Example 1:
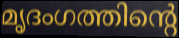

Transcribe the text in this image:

മൃദംഗത്തിന്റെ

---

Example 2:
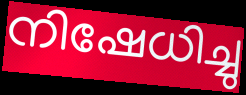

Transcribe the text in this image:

നിഷേധിച്ചു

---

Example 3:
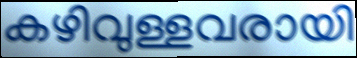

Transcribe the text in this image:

കഴിവുള്ളവരായി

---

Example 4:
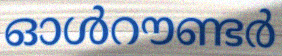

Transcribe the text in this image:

ഓൾറൗണ്ടർ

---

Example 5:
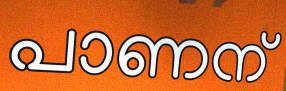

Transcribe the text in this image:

പാണന്